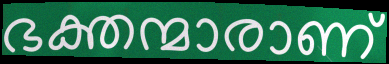
ഭക്തന്മാരാണ്